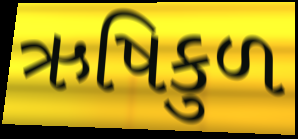
ઋષિકુળ